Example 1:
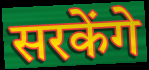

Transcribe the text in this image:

सरकेंगे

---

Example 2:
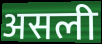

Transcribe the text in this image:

असली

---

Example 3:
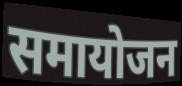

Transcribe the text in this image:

समायोजन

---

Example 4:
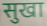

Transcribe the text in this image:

सुखा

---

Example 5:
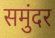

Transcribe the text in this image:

समुंदर